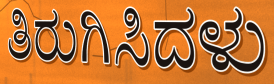
ತಿರುಗಿಸಿದಳು